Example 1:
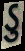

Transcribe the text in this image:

ડુ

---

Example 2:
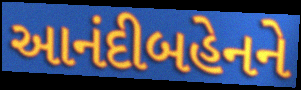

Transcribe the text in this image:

આનંદીબહેનને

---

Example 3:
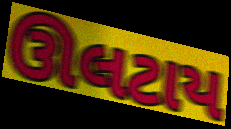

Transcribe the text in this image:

ઊલટાય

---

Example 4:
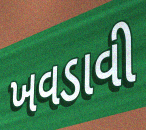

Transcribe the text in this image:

ખવડાવી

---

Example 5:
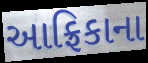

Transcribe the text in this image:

આફ્રિકાના